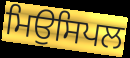
ਮਿਉਸਿਪਲ